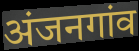
अंजनगांव